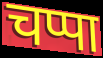
चप्पा